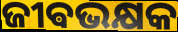
ଜୀଵଭକ୍ଷକ